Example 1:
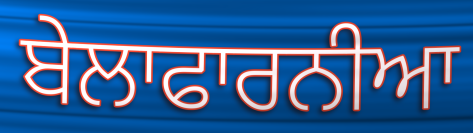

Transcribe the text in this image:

ਬੇਲਾਫਾਰਨੀਆ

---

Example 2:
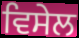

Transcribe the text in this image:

ਵਿਸੇਲ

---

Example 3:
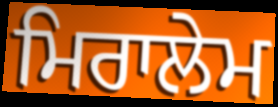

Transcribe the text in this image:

ਮਿਰਾਲੇਮ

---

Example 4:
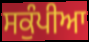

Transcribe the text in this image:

ਸਕੁੰਪੀਆ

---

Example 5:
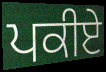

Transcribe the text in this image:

ਪਕੀਏ